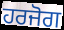
ਹਰਜੋਗ